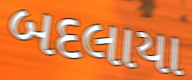
બદલાયા